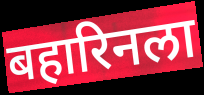
बहारिनला